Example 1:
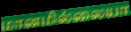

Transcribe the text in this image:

மானமில்லையா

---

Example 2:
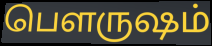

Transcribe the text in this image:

பௌருஷம்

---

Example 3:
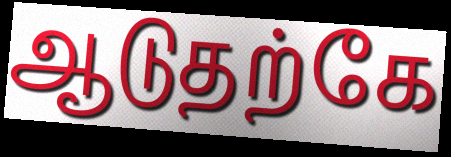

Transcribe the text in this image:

ஆடுதற்கே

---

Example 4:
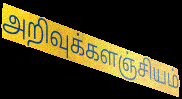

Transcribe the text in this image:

அறிவுக்களஞ்சியம்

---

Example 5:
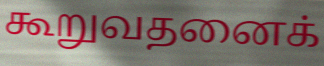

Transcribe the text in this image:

கூறுவதனைக்